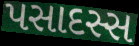
પસાદસ્સ